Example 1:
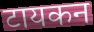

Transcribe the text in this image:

टायकन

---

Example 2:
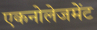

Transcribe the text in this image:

एकनोलेजमेंट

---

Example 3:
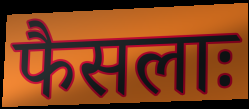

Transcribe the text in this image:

फैसलाः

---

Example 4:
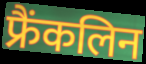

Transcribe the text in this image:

फ्रैंकलिन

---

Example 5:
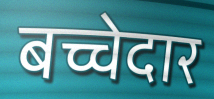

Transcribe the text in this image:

बच्चेदार